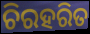
ଚିରହରିତ